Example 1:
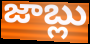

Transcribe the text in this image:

జాబ్లు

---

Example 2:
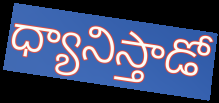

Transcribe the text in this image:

ధ్యానిస్తాడో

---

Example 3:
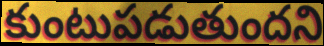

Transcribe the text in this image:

కుంటుపడుతుందని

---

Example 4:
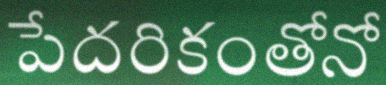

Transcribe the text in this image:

పేదరికంతోనో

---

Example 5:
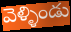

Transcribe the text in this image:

వెళ్ళిండు